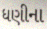
ધણીના